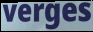
verges